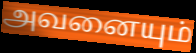
அவனையும்